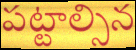
పట్టాల్సిన